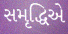
સમૃદ્ધિએ